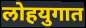
लोहयुगात